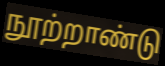
நூற்றாண்டு